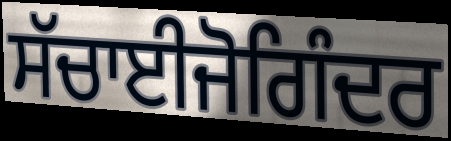
ਸੱਚਾਈਜੋਗਿੰਦਰ